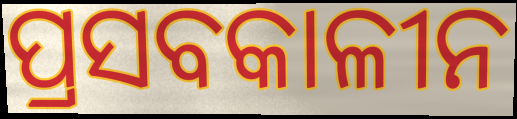
ପ୍ରସବକାଳୀନ